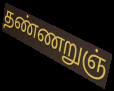
தண்ணறுஞ்